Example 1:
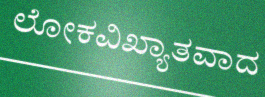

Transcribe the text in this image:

ಲೋಕವಿಖ್ಯಾತವಾದ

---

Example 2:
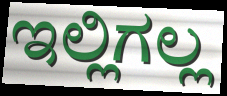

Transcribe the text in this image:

ಇಲ್ಲಿಗಲ್ಲ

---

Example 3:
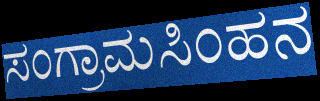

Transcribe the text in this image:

ಸಂಗ್ರಾಮಸಿಂಹನ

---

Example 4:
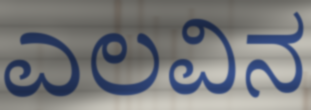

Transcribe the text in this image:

ಎಲವಿನ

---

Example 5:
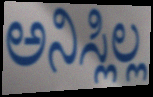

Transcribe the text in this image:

ಅನಿಸ್ಲಿಲ್ಲ